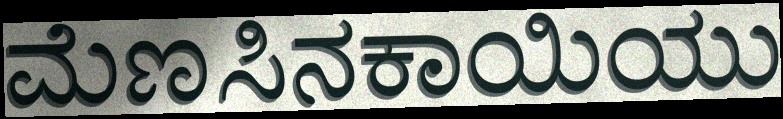
ಮೆಣಸಿನಕಾಯಿಯು